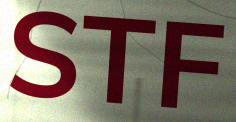
STF